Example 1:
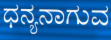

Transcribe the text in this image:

ಧನ್ಯನಾಗುವ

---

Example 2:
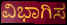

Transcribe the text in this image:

ವಿಭಾಗಿಸ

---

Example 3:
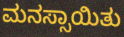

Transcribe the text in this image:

ಮನಸ್ಸಾಯಿತು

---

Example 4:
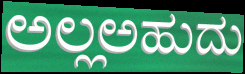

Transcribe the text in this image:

ಅಲ್ಲಅಹುದು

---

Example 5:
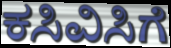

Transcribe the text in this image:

ಕಸಿವಿಸಿಗೆ